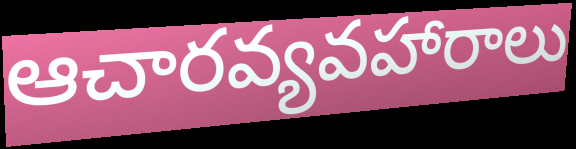
ఆచారవ్యవహారాలు